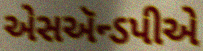
એસઍન્ડપીએ